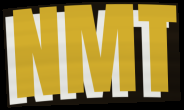
NMT